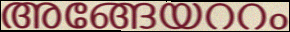
അങ്ങേയററം